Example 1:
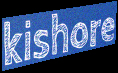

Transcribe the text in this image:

kishore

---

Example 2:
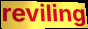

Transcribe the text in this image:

reviling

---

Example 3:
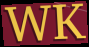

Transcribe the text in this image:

WK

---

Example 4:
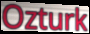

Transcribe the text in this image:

Ozturk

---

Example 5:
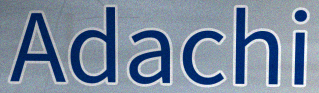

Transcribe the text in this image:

Adachi